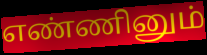
எண்ணினும்